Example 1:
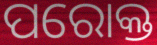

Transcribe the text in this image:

ପରୋକ୍ତ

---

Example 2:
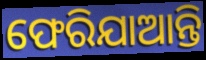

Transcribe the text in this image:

ଫେରିଯାଆନ୍ତି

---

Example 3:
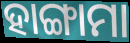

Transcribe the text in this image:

ହାଙ୍ଗାମା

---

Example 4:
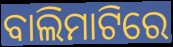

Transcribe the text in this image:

ବାଲିମାଟିରେ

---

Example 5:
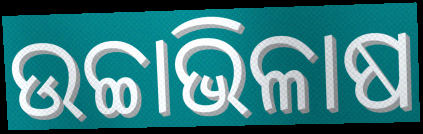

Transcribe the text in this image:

ଉଚ୍ଚାଭିଳାଷ